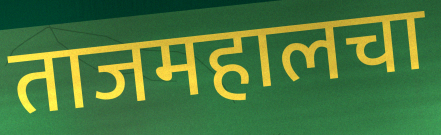
ताजमहालचा